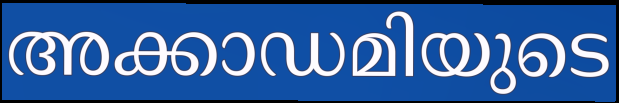
അക്കാഡമിയുടെ